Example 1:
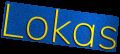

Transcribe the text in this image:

Lokas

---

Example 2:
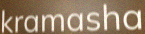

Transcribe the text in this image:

kramasha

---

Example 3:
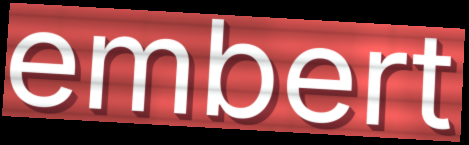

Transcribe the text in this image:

embert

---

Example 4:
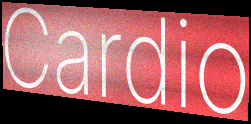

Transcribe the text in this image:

Cardio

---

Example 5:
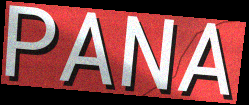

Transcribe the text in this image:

PANA